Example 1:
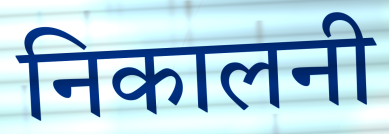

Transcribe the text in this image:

निकालनी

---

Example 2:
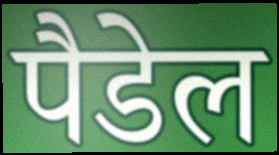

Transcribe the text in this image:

पैडेल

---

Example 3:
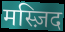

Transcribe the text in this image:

मस्ज़िद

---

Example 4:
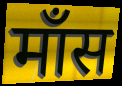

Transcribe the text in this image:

माँस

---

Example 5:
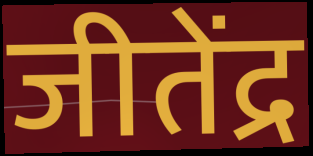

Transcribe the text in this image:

जीतेंद्र